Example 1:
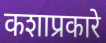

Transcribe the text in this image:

कशाप्रकारे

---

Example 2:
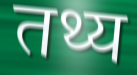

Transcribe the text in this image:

तथ्य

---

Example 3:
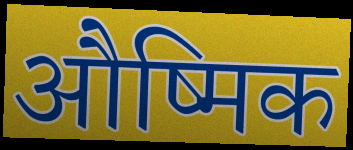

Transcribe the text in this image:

औष्मिक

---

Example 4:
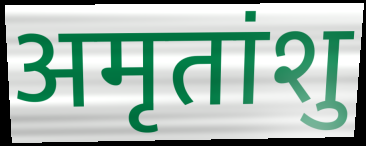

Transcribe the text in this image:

अमृतांशु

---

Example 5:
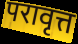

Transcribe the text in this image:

परावृत्त